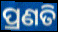
ପ୍ରଣତି